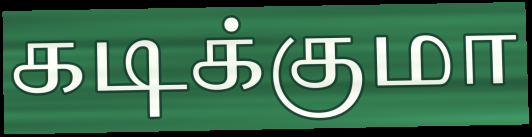
கடிக்குமா